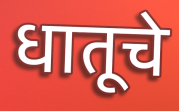
धातूचे